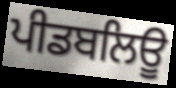
ਪੀਡਬਲਿਊ